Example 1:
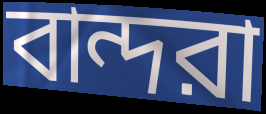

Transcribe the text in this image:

বান্দরা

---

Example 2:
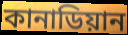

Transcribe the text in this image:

কানাডিয়ান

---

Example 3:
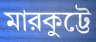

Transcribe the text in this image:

মারকুট্টে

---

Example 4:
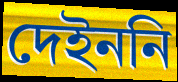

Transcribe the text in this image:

দেইননি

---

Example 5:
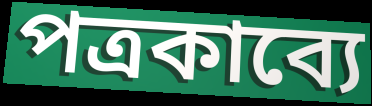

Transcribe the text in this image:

পত্রকাব্যে